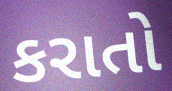
કરાતો